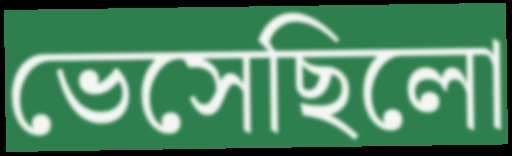
ভেসেছিলো